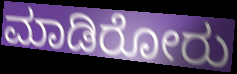
ಮಾಡಿರೋರು